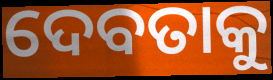
ଦେବତାକୁ